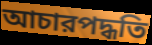
আচারপদ্ধতি